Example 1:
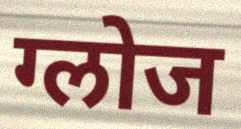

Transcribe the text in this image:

ग्लोज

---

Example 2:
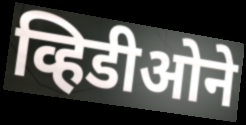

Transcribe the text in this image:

व्हिडीओने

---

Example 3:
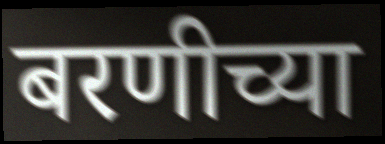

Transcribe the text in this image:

बरणीच्या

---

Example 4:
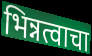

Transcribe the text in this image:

भिन्नत्वाचा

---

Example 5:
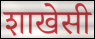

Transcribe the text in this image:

शाखेसी